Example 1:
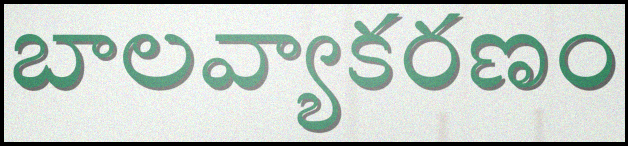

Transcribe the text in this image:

బాలవ్యాకరణం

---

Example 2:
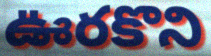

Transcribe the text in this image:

ఊరకొని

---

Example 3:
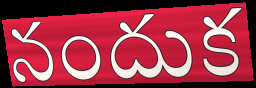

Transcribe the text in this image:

నందుక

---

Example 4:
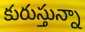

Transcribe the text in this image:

కురుస్తున్నా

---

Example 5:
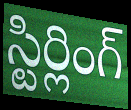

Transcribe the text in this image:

స్టిర్లింగ్